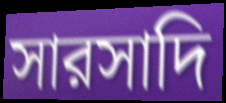
সারসাদি